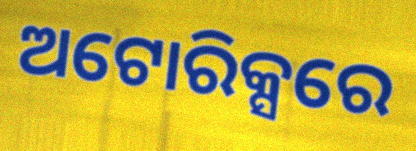
ଅଟୋରିକ୍ସରେ